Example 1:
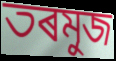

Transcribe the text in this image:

তৰমুজ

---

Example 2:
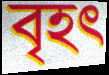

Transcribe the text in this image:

বৃহৎ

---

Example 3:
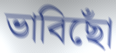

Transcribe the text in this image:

ভাবিছোঁ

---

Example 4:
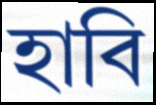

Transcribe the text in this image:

হাবি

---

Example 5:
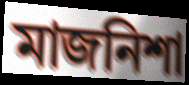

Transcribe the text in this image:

মাজনিশা